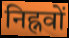
निह्नवों